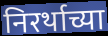
निरर्थाच्या